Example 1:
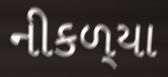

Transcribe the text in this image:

નીકળ્‌યા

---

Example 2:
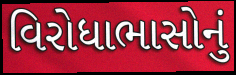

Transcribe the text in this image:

વિરોધાભાસોનું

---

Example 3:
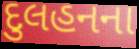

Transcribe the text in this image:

દુલહનના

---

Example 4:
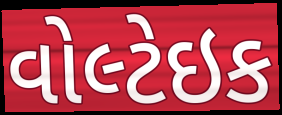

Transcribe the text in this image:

વોલ્ટેઇક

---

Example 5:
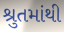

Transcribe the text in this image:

શ્રુતમાંથી